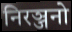
निरञ्जनो